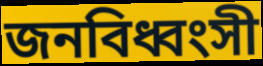
জনবিধ্বংসী